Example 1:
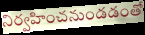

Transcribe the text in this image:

నిర్వహించనుండడంతో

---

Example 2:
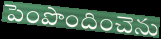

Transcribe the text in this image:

పెంపొందించెను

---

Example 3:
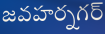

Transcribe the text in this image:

జవహర్నగర్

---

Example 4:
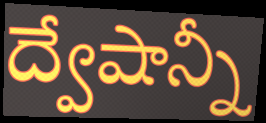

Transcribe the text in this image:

ద్వేషాన్నీ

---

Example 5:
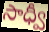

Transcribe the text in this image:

సాధ్వీ